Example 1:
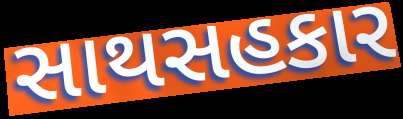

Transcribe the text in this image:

સાથસહકાર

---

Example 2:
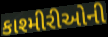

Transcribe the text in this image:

કાશ્મીરીઓની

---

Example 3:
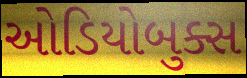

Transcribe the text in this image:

ઓડિયોબુક્સ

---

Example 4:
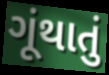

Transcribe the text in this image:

ગૂંથાતું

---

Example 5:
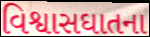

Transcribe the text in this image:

વિશ્વાસઘાતના